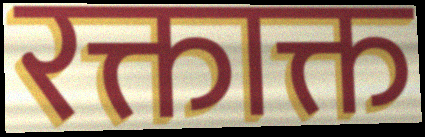
रक्ताक्त